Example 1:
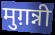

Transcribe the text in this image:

मुग़न्नी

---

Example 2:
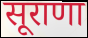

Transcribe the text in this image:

सूराणा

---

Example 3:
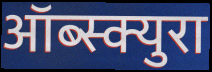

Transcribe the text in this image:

ऑब्स्क्युरा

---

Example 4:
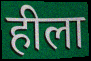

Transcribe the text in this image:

हीला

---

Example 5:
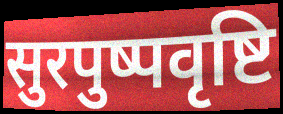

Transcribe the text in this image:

सुरपुष्पवृष्टि